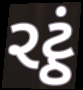
રટ્ઠં